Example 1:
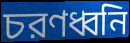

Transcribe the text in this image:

চরণধ্বনি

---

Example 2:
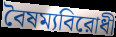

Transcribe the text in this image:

বৈষম্যবিরোধী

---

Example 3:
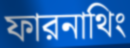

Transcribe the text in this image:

ফারনাথিং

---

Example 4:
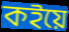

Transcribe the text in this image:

কইয়ে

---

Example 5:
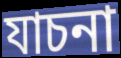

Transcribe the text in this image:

যাচনা